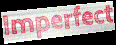
Imperfect